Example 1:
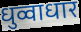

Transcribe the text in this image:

धुव्वाधार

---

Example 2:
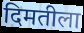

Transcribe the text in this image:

दिमतीला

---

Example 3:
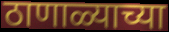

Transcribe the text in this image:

ठाणाळ्याच्या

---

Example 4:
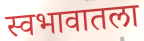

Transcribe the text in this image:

स्वभावातला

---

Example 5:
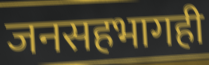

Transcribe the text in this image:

जनसहभागही